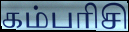
கம்பரிசி